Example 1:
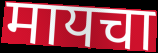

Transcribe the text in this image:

मायचा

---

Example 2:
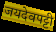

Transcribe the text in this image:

जयदेवपट्टी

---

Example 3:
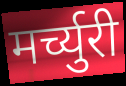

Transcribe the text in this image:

मर्च्युरी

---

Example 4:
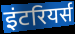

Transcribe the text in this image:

इंटरियर्स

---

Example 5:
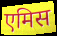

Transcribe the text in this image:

एमिस